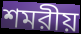
শমরীয়